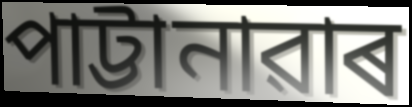
পাট্টানাৱাৰ